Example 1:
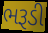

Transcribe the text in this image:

ભરૂડી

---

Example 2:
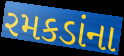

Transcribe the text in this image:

રમકડાંના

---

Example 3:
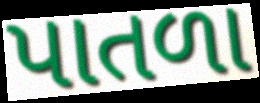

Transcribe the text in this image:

પાતળા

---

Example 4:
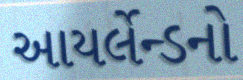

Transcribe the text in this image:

આયર્લેન્ડનો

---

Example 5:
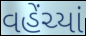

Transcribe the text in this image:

વહેંચ્યાં